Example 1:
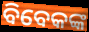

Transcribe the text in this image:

ବିବେକଙ୍କ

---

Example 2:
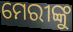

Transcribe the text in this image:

ମେରୀଙ୍କୁ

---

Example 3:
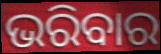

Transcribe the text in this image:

ଭରିବାର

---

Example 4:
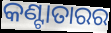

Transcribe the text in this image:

କଣ୍ଟାତାରର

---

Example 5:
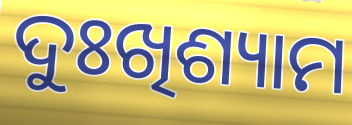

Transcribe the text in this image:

ଦୁଃଖିଶ୍ୟାମ